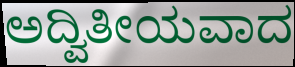
ಅದ್ವಿತೀಯವಾದ